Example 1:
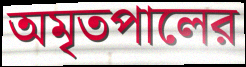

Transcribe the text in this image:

অমৃতপালের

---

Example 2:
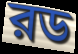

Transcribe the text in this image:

রড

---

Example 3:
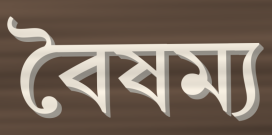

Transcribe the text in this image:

বৈষম্য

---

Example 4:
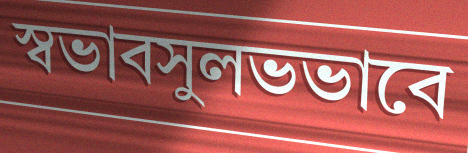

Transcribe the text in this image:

স্বভাবসুলভভাবে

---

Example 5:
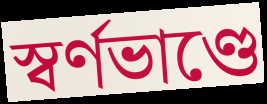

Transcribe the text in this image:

স্বর্ণভাণ্ডে